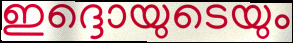
ഇദ്ദൊയുടെയും